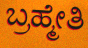
ಬ್ರಹ್ಮೇತಿ